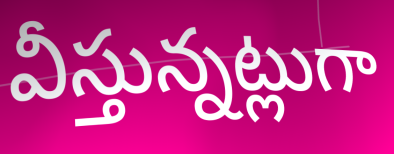
వీస్తున్నట్లుగా